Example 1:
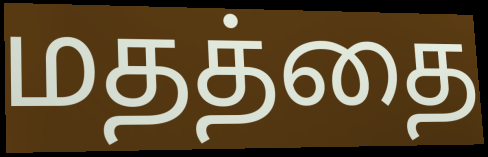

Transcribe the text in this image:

மதத்தை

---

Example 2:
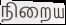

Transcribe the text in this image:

நிறைய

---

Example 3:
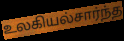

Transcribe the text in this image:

உலகியல்சார்ந்த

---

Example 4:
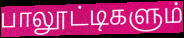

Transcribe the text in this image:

பாலூட்டிகளும்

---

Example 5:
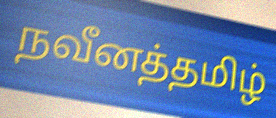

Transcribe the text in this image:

நவீனத்தமிழ்